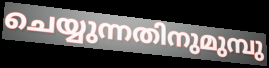
ചെയ്യുന്നതിനുമുമ്പു